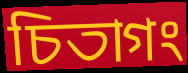
চিতাগং